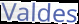
Valdes